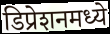
डिप्रेशनमध्ये